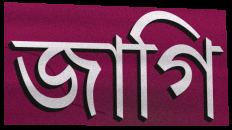
জাগি